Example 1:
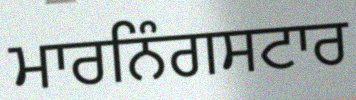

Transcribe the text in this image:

ਮਾਰਨਿੰਗਸਟਾਰ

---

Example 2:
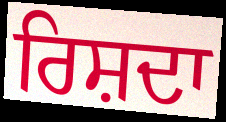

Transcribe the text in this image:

ਰਿਸ਼ਦਾ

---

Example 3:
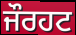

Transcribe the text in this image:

ਜੌਰਹਟ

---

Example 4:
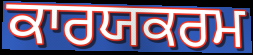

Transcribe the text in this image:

ਕਾਰਯਕਰਮ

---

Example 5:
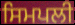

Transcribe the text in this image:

ਸਿਮਪਲੀ